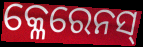
କ୍ଳେରେନସ୍